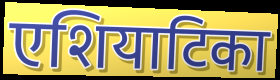
एशियाटिका